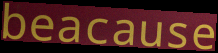
beacause